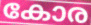
കോര